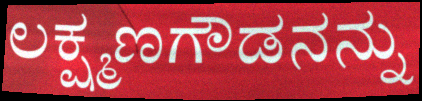
ಲಕ್ಷ್ಮಣಗೌಡನನ್ನು